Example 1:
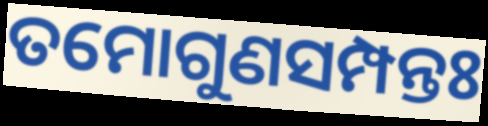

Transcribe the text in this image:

ତମୋଗୁଣସମ୍ପନ୍ତଃ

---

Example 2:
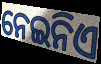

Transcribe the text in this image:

ନେଇନିଏ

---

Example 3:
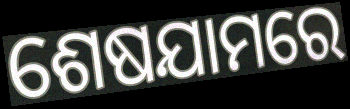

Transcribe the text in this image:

ଶେଷଯାମରେ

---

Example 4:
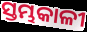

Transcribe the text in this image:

ସ୍ତମ୍ଭକାଳୀ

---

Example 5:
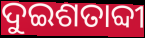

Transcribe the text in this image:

ଦୁଇଶତାବ୍ଦୀ